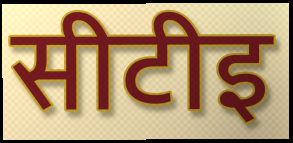
सीटीइ